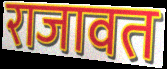
राजावत